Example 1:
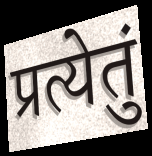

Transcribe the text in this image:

प्रत्येतुं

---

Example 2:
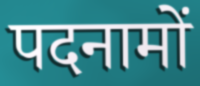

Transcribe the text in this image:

पदनामों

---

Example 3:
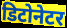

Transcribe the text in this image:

डिटोनेटर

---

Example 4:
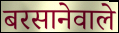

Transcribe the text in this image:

बरसानेवाले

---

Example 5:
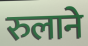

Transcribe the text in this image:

रुलाने